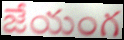
జేయంగ